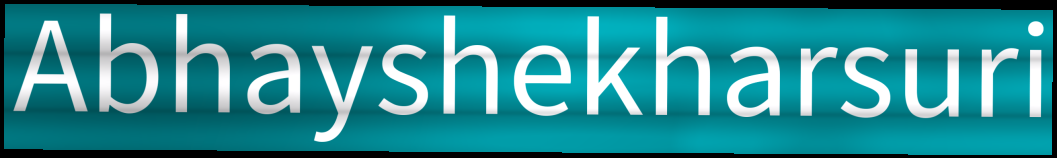
Abhayshekharsuri